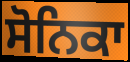
ਸੋਨਿਕਾ